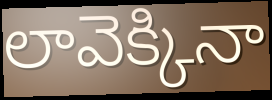
లావెక్కినా